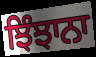
ਝਿੰਝਾਨਾ